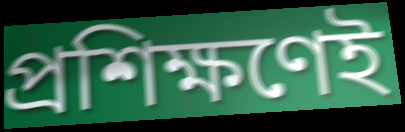
প্রশিক্ষণেই